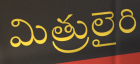
మిత్రులైరి